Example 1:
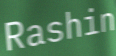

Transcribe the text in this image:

Rashin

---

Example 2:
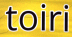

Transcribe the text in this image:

toiri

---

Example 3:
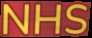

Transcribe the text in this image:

NHS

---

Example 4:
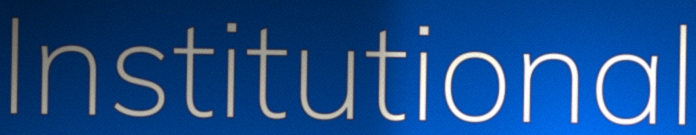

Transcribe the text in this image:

Institutional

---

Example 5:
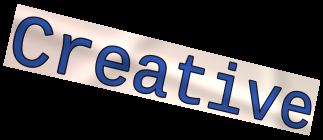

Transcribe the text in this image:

Creative